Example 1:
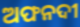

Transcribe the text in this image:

ଅଫନଦୀ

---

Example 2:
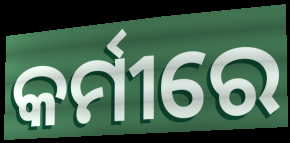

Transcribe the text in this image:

କର୍ମୀରେ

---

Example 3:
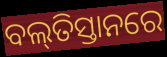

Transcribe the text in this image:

ବଲ୍‌ତିସ୍ତାନରେ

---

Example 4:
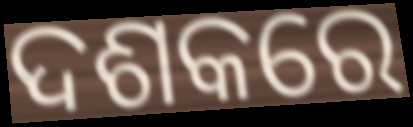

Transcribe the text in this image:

ଦଶକରେ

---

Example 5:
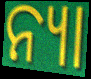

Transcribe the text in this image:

ନ୍ୟା